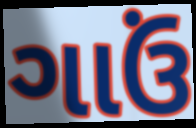
ગાઉં